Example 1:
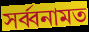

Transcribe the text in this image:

সৰ্ব্বনামত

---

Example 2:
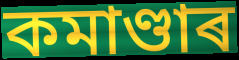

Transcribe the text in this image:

কমাণ্ডাৰ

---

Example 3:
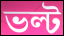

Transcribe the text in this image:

ভল্ট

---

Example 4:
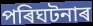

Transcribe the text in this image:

পৰিঘটনাৰ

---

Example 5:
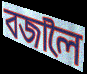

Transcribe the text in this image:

বজালৈ